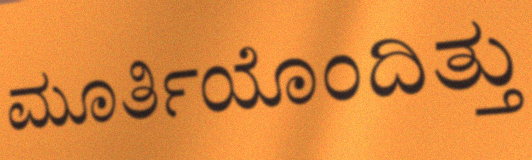
ಮೂರ್ತಿಯೊಂದಿತ್ತು